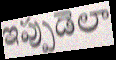
ఇప్పుడెలా